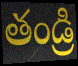
తండ్రి